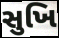
સુખિ